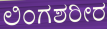
ಲಿಂಗಶರೀರ